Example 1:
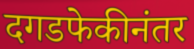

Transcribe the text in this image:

दगडफेकीनंतर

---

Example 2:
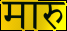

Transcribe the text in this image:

मारु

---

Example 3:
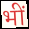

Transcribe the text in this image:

भीं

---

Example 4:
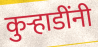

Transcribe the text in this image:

कुर्‍हाडींनी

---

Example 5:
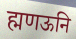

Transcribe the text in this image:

ह्मणऊनि